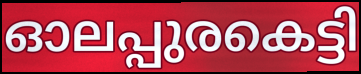
ഓലപ്പുരകെട്ടി